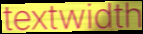
textwidth